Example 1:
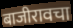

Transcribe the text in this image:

बाजीरावचा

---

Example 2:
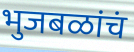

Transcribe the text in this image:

भुजबळांचं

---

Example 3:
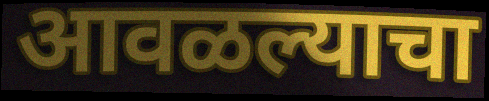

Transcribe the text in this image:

आवळल्याचा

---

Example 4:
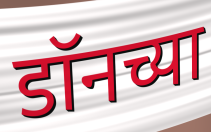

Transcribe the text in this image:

डॉनच्या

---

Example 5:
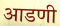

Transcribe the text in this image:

आडणी